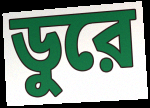
ডুরে